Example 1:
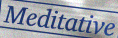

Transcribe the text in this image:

Meditative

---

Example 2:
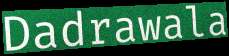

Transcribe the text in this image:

Dadrawala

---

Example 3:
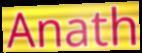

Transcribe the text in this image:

Anath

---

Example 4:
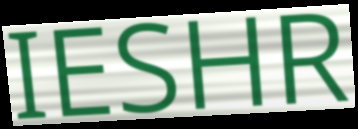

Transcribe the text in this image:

IESHR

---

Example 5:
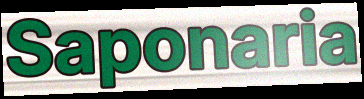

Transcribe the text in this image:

Saponaria